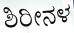
ಶಿರೀನಳ